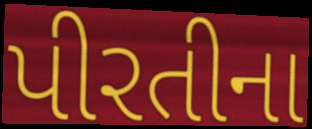
પીરતીના